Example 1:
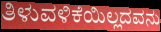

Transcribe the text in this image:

ತಿಳುವಳಿಕೆಯಿಲ್ಲದವನು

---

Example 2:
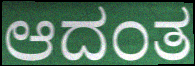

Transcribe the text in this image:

ಆದಂತ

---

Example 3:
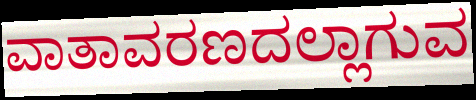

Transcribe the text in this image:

ವಾತಾವರಣದಲ್ಲಾಗುವ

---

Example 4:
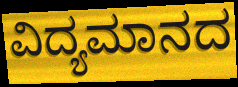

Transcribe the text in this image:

ವಿದ್ಯಮಾನದ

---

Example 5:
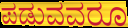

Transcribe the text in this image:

ಪಡುವವರೂ